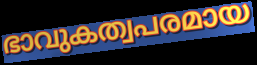
ഭാവുകത്വപരമായ